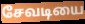
சேவடியை